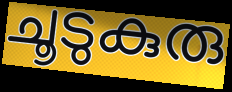
ചൂടുകുരു